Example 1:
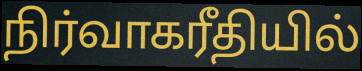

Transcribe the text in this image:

நிர்வாகரீதியில்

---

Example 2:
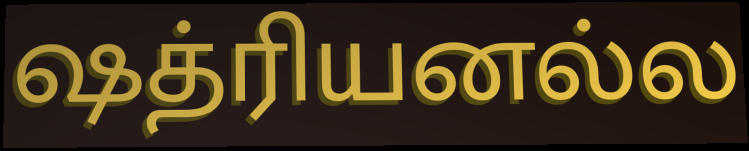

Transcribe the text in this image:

ஷத்ரியனல்ல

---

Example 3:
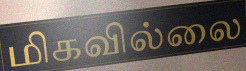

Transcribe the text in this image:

மிகவில்லை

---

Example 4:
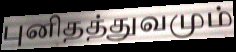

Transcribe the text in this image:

புனிதத்துவமும்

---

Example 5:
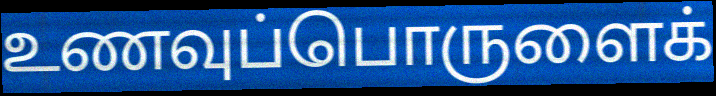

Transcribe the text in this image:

உணவுப்பொருளைக்